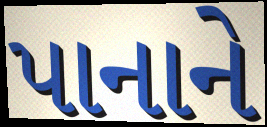
પાનાને